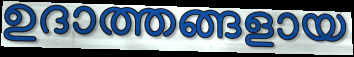
ഉദാത്തങ്ങളായ